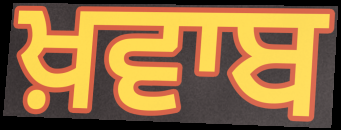
ਖ਼ਵਾਬ